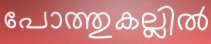
പോത്തുകല്ലിൽ